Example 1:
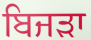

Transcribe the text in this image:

ਬਿਜੜਾ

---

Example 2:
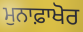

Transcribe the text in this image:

ਮੁਨਾਫ਼ਾਖੋਰ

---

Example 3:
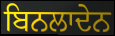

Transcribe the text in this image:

ਬਿਨਲਾਦੇਨ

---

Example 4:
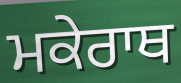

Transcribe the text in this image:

ਮਕੇਰਾਥ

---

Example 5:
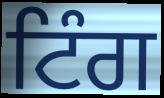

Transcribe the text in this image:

ਟਿੰਗ